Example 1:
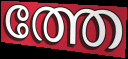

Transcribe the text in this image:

ത്തേ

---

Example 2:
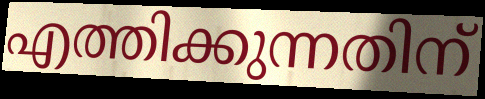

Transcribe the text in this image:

എത്തിക്കുന്നതിന്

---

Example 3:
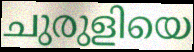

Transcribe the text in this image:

ചുരുളിയെ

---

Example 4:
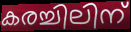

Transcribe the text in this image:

കരച്ചിലിന്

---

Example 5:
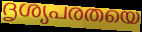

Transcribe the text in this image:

ദൃശ്യപരതയെ